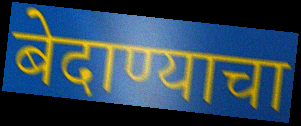
बेदाण्याचा